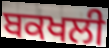
ਬਕਖਲੀ